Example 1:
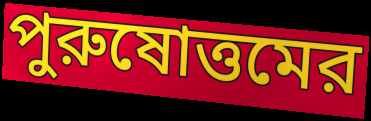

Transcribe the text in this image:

পুরুষোত্তমের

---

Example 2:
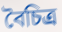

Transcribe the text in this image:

বৈচিত্র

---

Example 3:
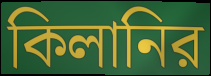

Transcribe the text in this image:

কিলানির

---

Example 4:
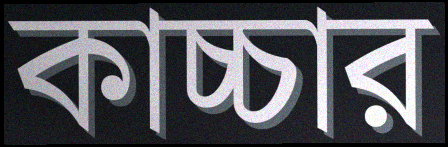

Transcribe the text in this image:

কাচ্চার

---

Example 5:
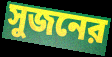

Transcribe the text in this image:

সুজনের